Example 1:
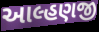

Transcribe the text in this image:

આલ્હણજી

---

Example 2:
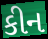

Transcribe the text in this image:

કીન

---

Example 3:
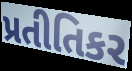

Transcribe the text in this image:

પ્રતીતિકર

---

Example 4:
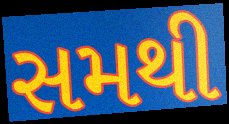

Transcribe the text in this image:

સમથી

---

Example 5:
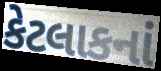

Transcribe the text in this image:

કેટલાકનાં